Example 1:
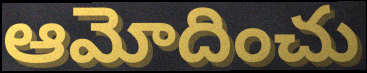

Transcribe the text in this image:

ఆమోదించు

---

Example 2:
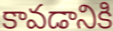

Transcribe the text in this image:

కావడానికి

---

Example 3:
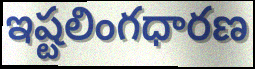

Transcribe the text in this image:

ఇష్టలింగధారణ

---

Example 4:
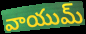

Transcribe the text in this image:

వాయుమ్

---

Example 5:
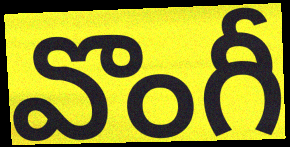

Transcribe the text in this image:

వొంగీ